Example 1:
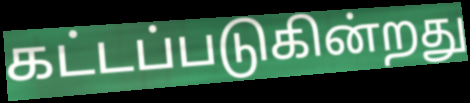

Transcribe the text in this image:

கட்டப்படுகின்றது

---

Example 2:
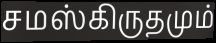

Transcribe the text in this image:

சமஸ்கிருதமும்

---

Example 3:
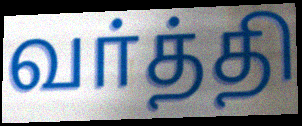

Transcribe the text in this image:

வர்த்தி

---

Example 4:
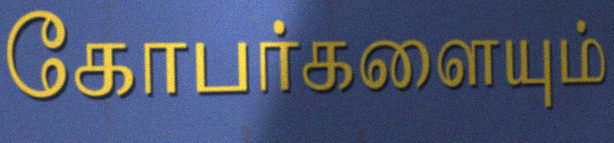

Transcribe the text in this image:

கோபர்களையும்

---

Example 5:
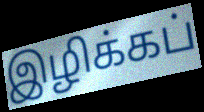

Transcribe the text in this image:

இழிக்கப்